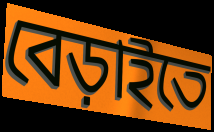
বেড়াইতে